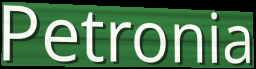
Petronia